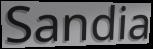
Sandia